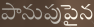
పానుపుపైన